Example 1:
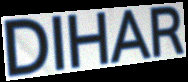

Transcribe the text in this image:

DIHAR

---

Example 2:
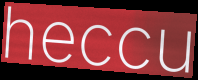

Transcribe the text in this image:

heccu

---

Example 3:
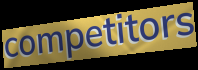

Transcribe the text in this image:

competitors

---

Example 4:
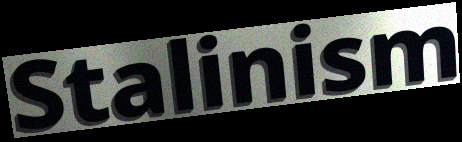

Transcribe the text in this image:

Stalinism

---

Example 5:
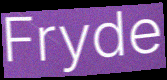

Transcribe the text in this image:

Fryde